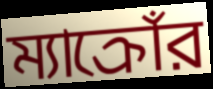
ম্যাক্রোঁর